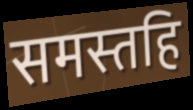
समस्तहि